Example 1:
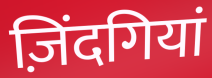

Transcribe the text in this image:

ज़िंदगियां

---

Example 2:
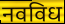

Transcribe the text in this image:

नवविध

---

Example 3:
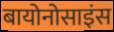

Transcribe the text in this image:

बायोनोसाइंस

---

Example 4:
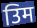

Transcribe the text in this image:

उिम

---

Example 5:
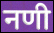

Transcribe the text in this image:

नणी